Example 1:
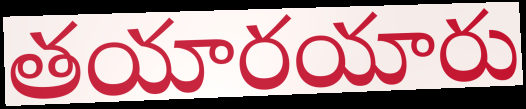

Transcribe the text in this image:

తయారయారు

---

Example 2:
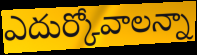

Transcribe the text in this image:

ఎదుర్కోవాలన్నా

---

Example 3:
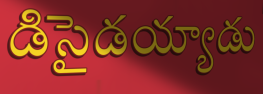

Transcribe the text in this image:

డిసైడయ్యాడు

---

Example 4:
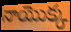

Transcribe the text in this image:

నాయొక్క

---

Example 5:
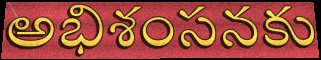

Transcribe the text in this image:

అభిశంసనకు